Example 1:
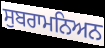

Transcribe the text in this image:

ਸੁਬਰਾਮਨਿਅਨ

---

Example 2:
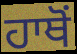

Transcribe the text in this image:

ਹਾਥੋਂ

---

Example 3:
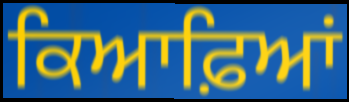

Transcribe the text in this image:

ਕਿਆਫ਼ਿਆਂ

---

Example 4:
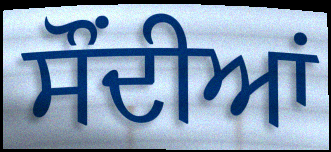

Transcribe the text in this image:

ਸੌਂਦੀਆਂ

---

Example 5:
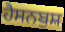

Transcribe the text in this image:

ਹੈਸਨਬੁਸ਼